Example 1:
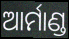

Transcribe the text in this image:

ଆର୍ମାଣ୍ଡ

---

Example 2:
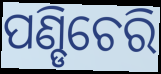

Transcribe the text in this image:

ପଣ୍ଡିଚେରି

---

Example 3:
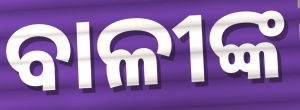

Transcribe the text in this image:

ବାଳୀଙ୍କ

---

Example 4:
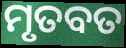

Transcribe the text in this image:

ମୃତବତ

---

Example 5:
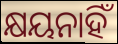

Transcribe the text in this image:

କ୍ଷୟନାହିଁ